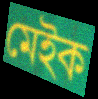
মেইক